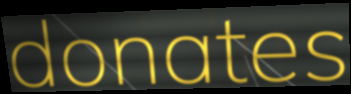
donates